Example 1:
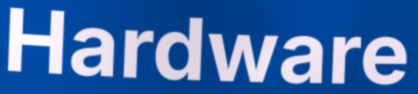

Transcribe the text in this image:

Hardware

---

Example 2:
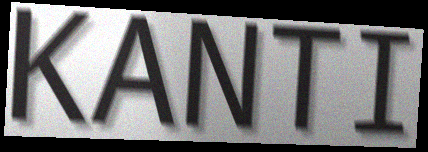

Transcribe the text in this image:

KANTI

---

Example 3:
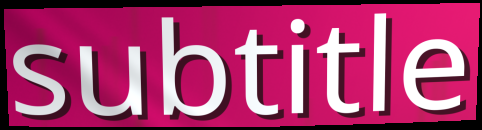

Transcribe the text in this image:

subtitle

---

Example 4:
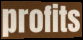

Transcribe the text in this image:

profits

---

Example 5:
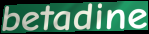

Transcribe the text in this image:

betadine